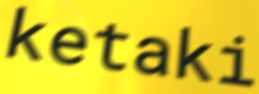
ketaki